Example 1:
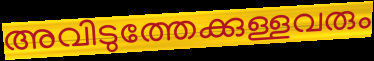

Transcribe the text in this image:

അവിടുത്തേക്കുള്ളവരും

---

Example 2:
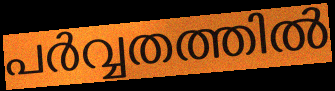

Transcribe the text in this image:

പർവ്വതത്തിൽ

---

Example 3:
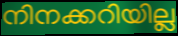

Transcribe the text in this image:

നിനക്കറിയില്ല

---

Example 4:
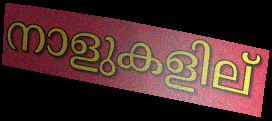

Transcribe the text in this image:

നാളുകളില്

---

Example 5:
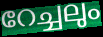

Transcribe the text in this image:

റേച്ചലും